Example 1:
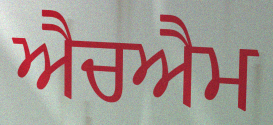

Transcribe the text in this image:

ਐਚਐਮ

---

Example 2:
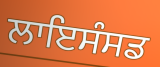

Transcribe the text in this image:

ਲਾਇਸੰਸਡ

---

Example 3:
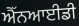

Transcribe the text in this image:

ਐੱਨਆਈਡੀ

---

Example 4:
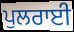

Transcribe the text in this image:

ਪੁਲਰਾਈ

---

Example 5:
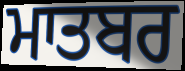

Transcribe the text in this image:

ਮਾਤਬਰ